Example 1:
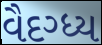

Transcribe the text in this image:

વૈદગ્ધ્ય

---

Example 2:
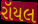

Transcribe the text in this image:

રૉયલ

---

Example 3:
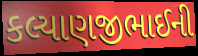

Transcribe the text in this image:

કલ્યાણજીભાઈની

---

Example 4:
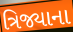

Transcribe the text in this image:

ત્રિજ્યાના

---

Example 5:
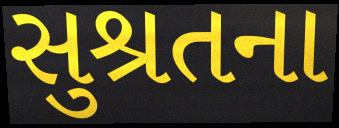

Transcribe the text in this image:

સુશ્રતના